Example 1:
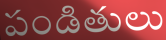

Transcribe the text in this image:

పండితులు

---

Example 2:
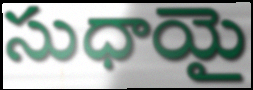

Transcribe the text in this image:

సుధాయై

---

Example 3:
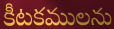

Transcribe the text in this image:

కీటకములను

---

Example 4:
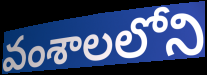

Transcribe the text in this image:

వంశాలలోని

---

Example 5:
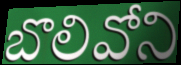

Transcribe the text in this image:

బొలివోని